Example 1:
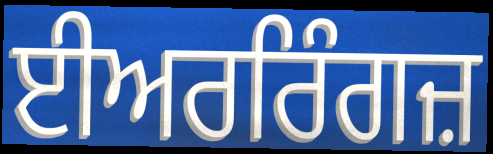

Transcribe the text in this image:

ਈਅਰਰਿੰਗਜ਼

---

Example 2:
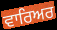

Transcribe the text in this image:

ਵਾਰਿਅਰ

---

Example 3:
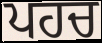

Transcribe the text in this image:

ਪਹਚ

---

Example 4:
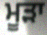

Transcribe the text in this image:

ਮੂੜਾ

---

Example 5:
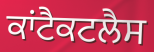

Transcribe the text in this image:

ਕਾਂਟੈਕਟਲੈਸ